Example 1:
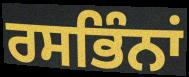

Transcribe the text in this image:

ਰਸਭਿੰਨਾਂ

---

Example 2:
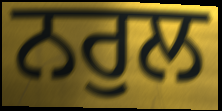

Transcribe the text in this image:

ਨਰੁਲ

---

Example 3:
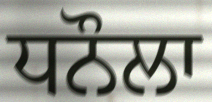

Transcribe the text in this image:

ਧਨੌਲਾ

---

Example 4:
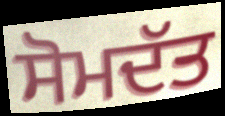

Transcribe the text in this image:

ਸੋਮਦੱਤ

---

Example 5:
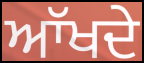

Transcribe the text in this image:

ਆੱਖਦੇ